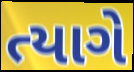
ત્યાગે